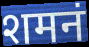
शमनं